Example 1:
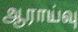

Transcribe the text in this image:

ஆராய்வு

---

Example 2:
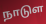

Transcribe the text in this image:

நாடுள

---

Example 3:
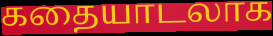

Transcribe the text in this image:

கதையாடலாக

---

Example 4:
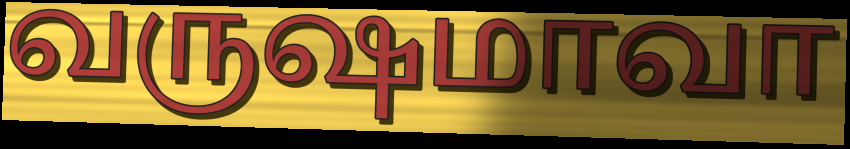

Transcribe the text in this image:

வருஷமாவா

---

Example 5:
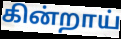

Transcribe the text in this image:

கின்றாய்